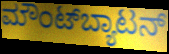
ಮೌಂಟ್‌ಬ್ಯಾಟನ್